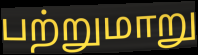
பற்றுமாறு